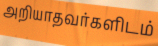
அறியாதவர்களிடம்